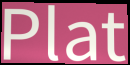
Plat